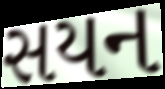
સયન